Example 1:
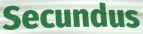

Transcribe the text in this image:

Secundus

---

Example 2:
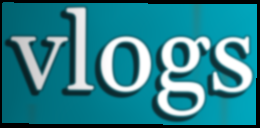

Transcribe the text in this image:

vlogs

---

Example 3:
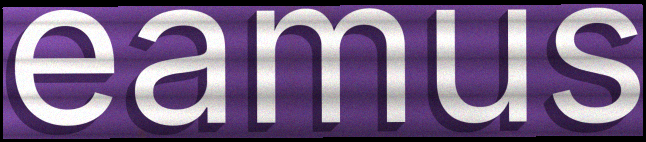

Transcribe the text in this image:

eamus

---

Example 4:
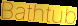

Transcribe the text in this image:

Bathtub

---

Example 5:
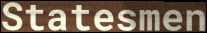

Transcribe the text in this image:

Statesmen